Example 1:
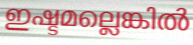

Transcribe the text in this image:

ഇഷ്ടമല്ലെങ്കിൽ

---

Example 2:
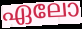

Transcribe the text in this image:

ഏലോ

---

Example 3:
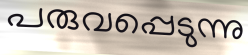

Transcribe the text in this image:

പരുവപ്പെടുന്നു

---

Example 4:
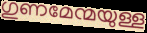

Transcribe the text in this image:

ഗുണമേന്മയുള്ള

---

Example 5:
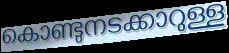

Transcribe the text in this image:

കൊണ്ടുനടക്കാറുള്ള